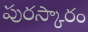
పురస్కారం